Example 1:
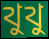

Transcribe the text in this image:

থুথু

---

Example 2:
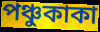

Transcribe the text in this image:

পঞ্চুকাকা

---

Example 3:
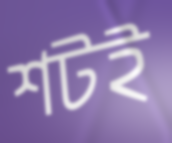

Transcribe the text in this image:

শটই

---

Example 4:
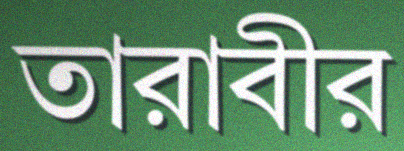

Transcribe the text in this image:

তারাবীর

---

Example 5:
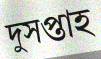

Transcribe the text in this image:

দুসপ্তাহ